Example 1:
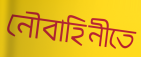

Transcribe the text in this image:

নৌবাহিনীতে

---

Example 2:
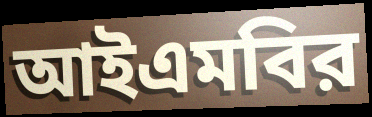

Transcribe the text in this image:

আইএমবির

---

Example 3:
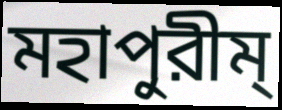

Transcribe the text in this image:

মহাপুরীম্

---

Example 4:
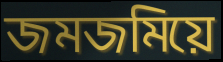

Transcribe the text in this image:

জমজমিয়ে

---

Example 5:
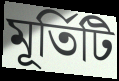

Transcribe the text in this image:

মূর্তিটি